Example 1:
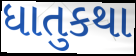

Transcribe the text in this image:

ધાતુકથા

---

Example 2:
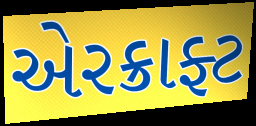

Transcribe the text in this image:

એરક્રાફ્ટ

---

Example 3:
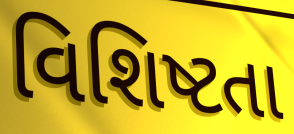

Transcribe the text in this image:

વિશિષ્ટતા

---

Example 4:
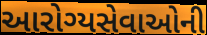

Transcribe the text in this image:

આરોગ્યસેવાઓની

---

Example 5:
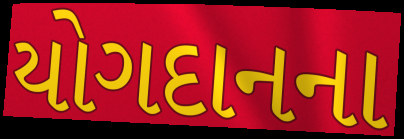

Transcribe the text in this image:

યોગદાનના